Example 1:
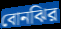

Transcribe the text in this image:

বোনঝির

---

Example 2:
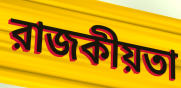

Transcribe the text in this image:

রাজকীয়তা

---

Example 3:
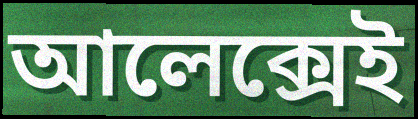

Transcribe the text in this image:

আলেক্সেই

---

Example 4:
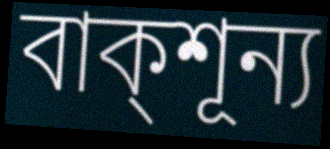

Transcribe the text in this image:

বাক্শূন্য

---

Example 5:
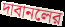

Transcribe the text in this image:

দাবানলের